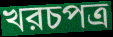
খরচপত্র